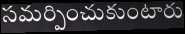
సమర్పించుకుంటారు